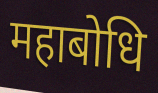
महाबोधि